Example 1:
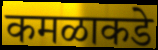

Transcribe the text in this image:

कमळाकडे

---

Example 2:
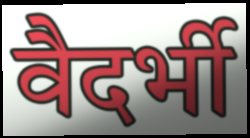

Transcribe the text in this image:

वैदर्भी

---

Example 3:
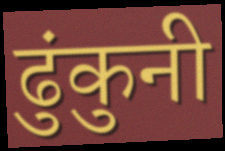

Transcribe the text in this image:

ढुंकुनी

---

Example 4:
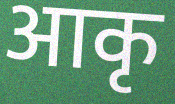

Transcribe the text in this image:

आकृ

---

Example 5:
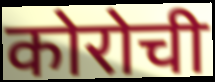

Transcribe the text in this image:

कोरोची